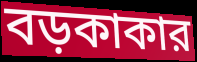
বড়কাকার